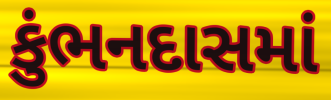
કુંભનદાસમાં